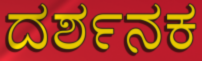
ದರ್ಶನಕ